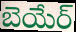
బెయేర్